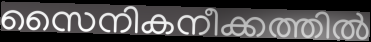
സൈനികനീക്കത്തിൽ